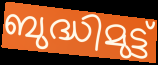
ബുദ്ധിമുട്ട്